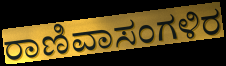
ರಾಣಿವಾಸಂಗಳಿರ